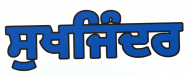
ਸੁਖਜਿੰਦਰ